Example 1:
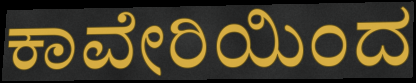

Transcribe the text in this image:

ಕಾವೇರಿಯಿಂದ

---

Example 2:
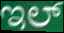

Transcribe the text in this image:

ಇಲ್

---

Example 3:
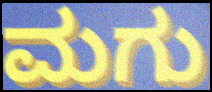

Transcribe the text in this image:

ಮಗು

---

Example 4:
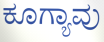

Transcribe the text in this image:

ಕೂಗ್ಯಾವು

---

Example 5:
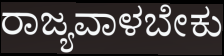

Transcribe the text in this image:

ರಾಜ್ಯವಾಳಬೇಕು